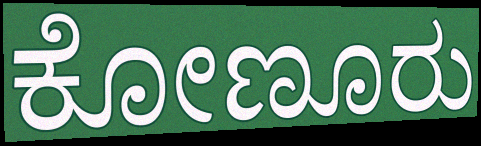
ಕೋಣೂರು